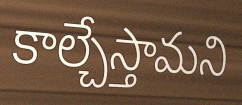
కాల్చేస్తామని